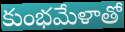
కుంభమేళాతో